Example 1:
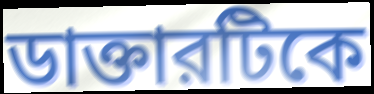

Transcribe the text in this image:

ডাক্তারটিকে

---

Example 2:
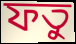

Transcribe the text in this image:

ফতু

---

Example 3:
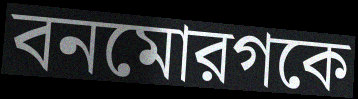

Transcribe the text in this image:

বনমোরগকে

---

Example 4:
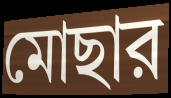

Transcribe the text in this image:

মোছার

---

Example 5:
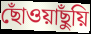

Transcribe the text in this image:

ছোঁওয়াছুঁয়ি